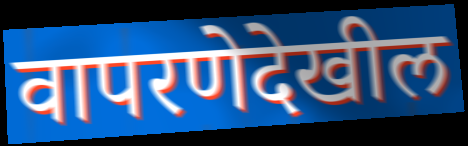
वापरणेदेखील